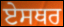
ਏਸਥਰ